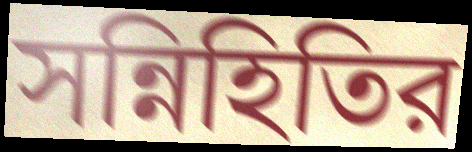
সন্নিহিতির